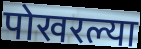
पोखरल्या